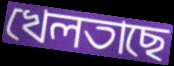
খেলতাছে